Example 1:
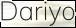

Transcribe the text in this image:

Dariyo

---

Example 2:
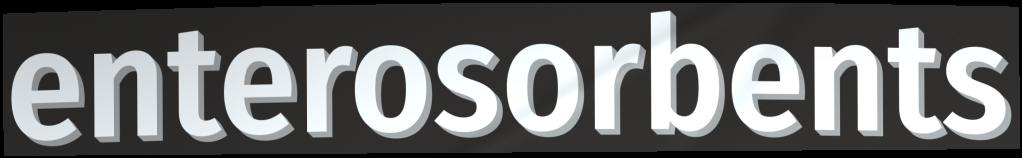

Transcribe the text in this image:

enterosorbents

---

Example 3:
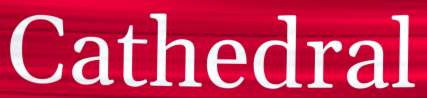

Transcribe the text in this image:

Cathedral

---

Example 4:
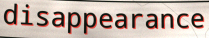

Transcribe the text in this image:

disappearance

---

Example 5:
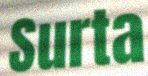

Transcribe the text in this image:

Surta